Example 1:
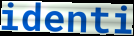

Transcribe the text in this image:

identi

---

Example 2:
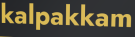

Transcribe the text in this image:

kalpakkam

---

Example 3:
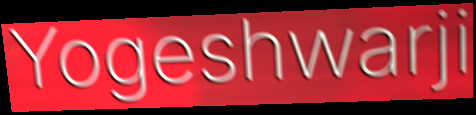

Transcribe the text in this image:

Yogeshwarji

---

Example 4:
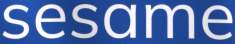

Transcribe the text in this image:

sesame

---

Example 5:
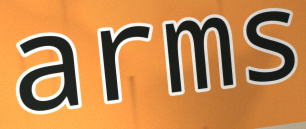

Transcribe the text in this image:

arms